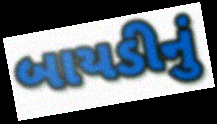
બાયડીનું